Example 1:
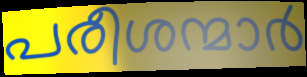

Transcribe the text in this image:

പരീശന്മാർ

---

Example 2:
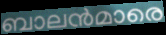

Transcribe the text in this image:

ബാലൻമാരെ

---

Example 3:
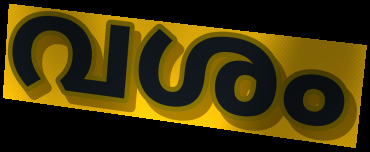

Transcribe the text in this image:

വശം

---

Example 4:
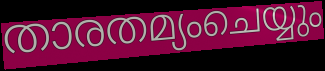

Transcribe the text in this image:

താരതമ്യംചെയ്യും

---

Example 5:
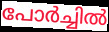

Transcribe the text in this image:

പോർച്ചിൽ